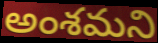
అంశమని